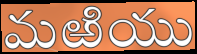
మఱియు